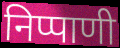
निप्पाणी